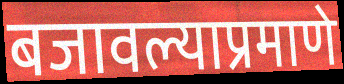
बजावल्याप्रमाणे